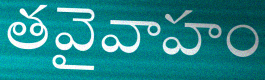
తవైవాహం